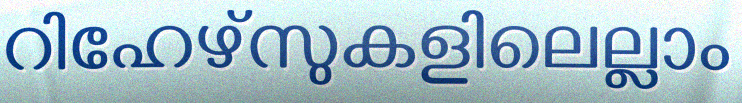
റിഹേഴ്സുകളിലെല്ലാം